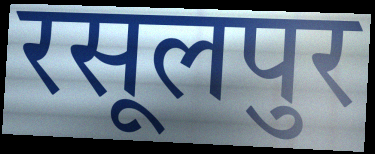
रसूलपुर